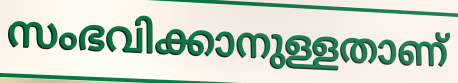
സംഭവിക്കാനുള്ളതാണ്